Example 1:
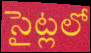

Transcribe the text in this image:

సైట్లలో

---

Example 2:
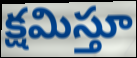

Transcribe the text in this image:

క్షమిస్తూ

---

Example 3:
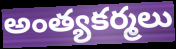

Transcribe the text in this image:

అంత్యకర్మలు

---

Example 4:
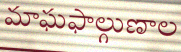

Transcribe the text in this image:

మాఘఫాల్గుణాల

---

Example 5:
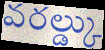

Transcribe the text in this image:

వరల్డ్కు